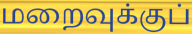
மறைவுக்குப்